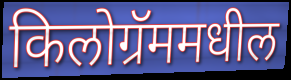
किलोग्रॅममधील